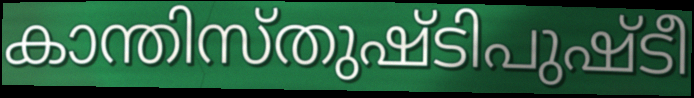
കാന്തിസ്തുഷ്ടിപുഷ്ടീ